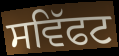
ਸਵਿੱਫਟ